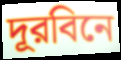
দূরবিনে